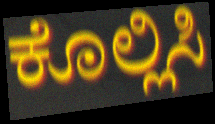
ಕೊಲ್ಲಿಸಿ